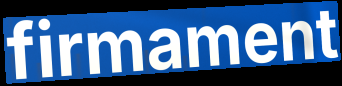
firmament